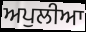
ਅਪੁਲੀਆ